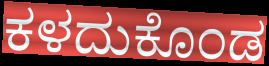
ಕಳದುಕೊಂಡ